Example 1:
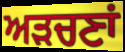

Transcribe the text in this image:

ਅੜਚਣਾਂ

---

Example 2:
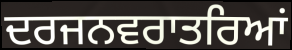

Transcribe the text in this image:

ਦਰਜਨਵਰਾਤਰਿਆਂ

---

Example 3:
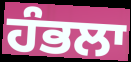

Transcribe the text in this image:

ਹੰਭਲਾ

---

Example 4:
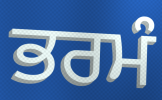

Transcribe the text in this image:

ਭਰਮੰ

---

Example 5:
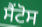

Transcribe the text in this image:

ਸੈਂਟੋਸ